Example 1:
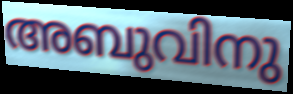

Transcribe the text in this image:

അബുവിനു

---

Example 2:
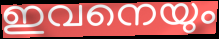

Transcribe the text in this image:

ഇവനെയും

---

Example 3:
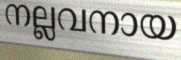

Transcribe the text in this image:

നല്ലവനായ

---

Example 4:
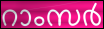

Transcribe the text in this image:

റാംസർ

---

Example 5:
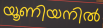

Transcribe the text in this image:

യൂണിയനിൽ